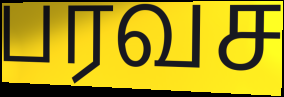
பரவச